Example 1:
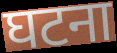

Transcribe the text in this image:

घटना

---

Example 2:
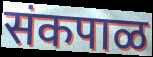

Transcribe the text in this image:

संकपाळ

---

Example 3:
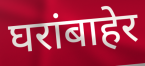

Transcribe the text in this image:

घरांबाहेर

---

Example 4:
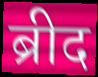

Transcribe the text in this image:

ब्रीद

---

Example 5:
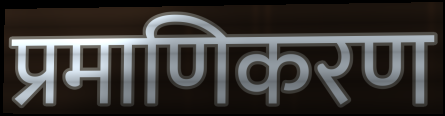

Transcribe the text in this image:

प्रमाणिकरण